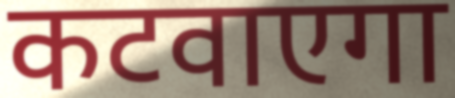
कटवाएगा